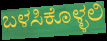
ಬಳಸಿಕೊಳ್ಳಲಿ